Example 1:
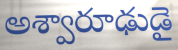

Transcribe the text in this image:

అశ్వారూఢుడై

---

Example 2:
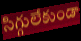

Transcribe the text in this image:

సిగ్గులేకుండా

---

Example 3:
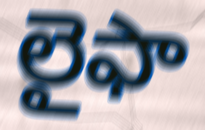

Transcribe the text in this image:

లైఫా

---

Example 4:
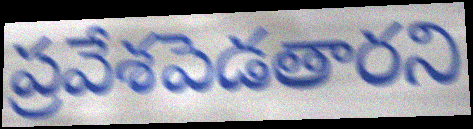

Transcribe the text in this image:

ప్రవేశపెడతారని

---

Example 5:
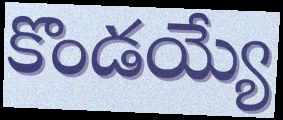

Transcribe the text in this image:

కొండయ్యే